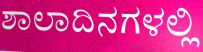
ಶಾಲಾದಿನಗಳಲ್ಲಿ